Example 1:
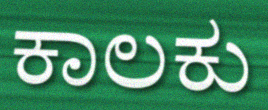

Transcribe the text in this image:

ಕಾಲಕು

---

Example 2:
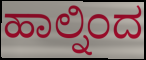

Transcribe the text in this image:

ಹಾಲ್ನಿಂದ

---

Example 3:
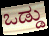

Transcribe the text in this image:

ಒಡ್ಡು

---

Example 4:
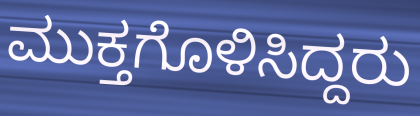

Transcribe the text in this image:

ಮುಕ್ತಗೊಳಿಸಿದ್ದರು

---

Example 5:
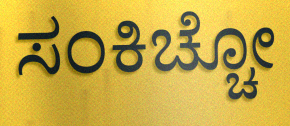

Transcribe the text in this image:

ಸಂಕಿಚ್ಚೋ